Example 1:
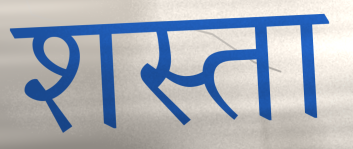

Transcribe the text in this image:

शस्ता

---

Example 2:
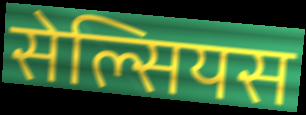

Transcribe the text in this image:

सेल्सियस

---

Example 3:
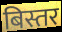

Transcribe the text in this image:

बिस्तर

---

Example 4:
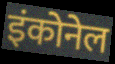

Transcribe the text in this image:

इंकोनेल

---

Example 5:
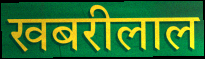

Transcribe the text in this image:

खबरीलाल